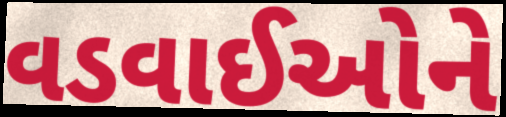
વડવાઈઓને